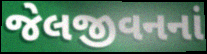
જેલજીવનનાં